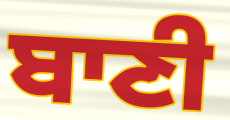
ਬਾਣੀ